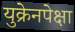
युक्रेनपेक्षा